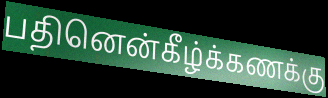
பதினென்கீழ்க்கணக்கு